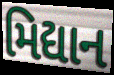
મિદ્યાન